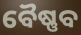
ବୈଷ୍ଣବ